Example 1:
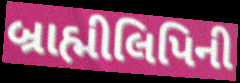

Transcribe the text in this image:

બ્રાહ્મીલિપિની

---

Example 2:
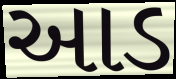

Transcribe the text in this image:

આડ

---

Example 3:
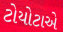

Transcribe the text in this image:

ટોયોટાએ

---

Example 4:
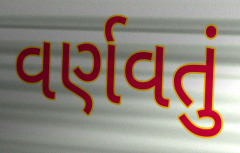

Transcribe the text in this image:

વર્ણવતું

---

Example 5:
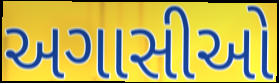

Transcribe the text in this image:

અગાસીઓ